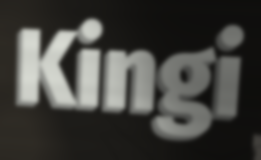
Kingi